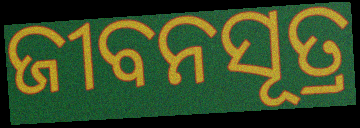
ଜୀବନସୂତ୍ର